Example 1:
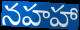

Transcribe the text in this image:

నహహా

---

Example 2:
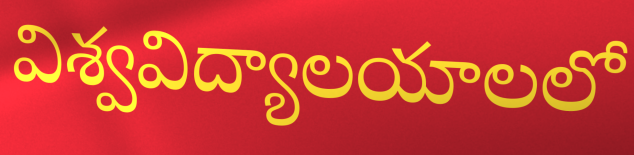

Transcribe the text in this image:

విశ్వవిద్యాలయాలలో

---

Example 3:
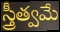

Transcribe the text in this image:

స్త్రీత్వమే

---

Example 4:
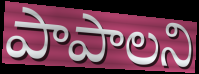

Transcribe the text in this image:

పాపాలని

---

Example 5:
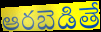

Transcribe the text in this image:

ఆరబెడితే